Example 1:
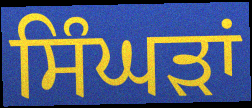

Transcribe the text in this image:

ਸਿੰਘੜਾਂ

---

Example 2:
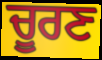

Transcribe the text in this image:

ਚੂਰਣ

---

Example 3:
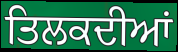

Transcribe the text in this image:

ਤਿਲਕਦੀਆਂ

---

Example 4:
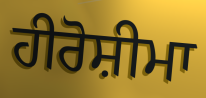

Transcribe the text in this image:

ਹੀਰੋਸ਼ੀਮਾ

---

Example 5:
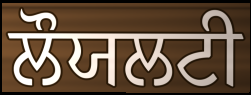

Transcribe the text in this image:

ਲੌਯਲਟੀ